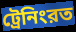
ট্রেনিংরত